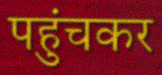
पहुंचकर